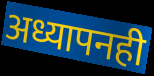
अध्यापनही